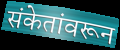
संकेतांवरून